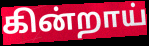
கின்றாய்